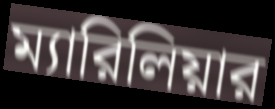
ম্যারিলিয়ার